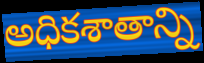
అధికశాతాన్ని